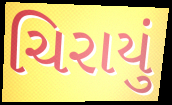
ચિરાયું